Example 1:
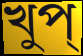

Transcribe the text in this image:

খুপ্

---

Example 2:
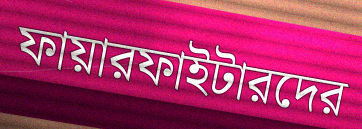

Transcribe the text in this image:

ফায়ারফাইটারদের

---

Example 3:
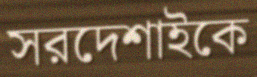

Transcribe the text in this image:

সরদেশাইকে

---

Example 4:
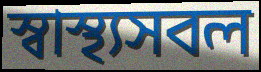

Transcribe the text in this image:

স্বাস্থ্যসবল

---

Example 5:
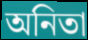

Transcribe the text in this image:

অনিতা